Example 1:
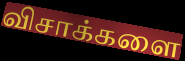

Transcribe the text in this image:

விசாக்களை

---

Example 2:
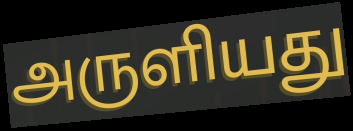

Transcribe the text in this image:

அருளியது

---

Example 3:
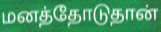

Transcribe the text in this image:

மனத்தோடுதான்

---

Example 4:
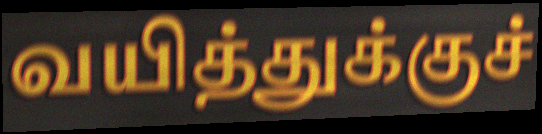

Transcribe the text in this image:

வயித்துக்குச்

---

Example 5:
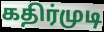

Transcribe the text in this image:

கதிர்முடி